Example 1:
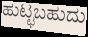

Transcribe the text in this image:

ಹುಟ್ಟಬಹುದು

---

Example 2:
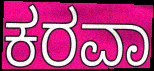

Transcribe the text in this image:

ಕರವಾ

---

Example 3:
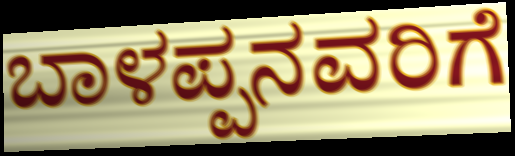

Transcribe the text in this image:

ಬಾಳಪ್ಪನವರಿಗೆ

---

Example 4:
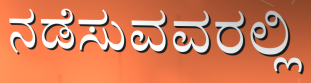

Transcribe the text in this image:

ನಡೆಸುವವರಲ್ಲಿ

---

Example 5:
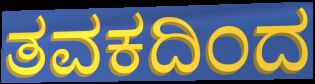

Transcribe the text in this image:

ತವಕದಿಂದ